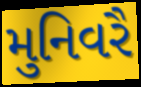
મુનિવરૈ